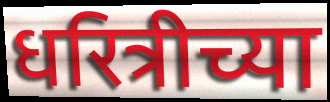
धरित्रीच्या